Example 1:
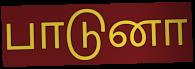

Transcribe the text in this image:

பாடுனா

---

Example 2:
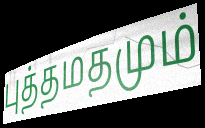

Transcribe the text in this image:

புத்தமதமும்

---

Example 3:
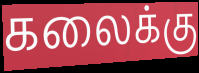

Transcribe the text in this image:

கலைக்கு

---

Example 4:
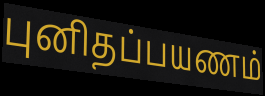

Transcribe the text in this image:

புனிதப்பயணம்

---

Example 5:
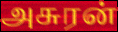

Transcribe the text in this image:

அசுரன்